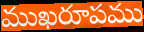
ముఖరూపము